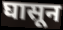
घासून